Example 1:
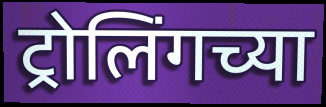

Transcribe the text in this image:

ट्रोलिंगच्या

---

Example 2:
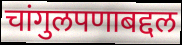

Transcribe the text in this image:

चांगुलपणाबद्दल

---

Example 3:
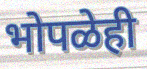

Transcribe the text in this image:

भोपळेही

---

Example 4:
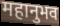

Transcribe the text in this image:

महानुभव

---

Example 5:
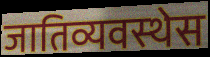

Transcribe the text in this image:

जातिव्यवस्थेस